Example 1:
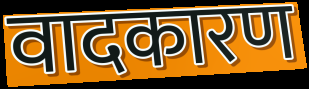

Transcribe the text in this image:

वादकारण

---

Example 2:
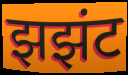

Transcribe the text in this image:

झझंट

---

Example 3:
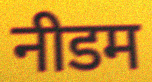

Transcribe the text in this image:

नीडम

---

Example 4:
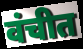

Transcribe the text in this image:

वंचीत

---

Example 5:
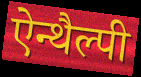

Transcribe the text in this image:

ऐन्थैल्पी